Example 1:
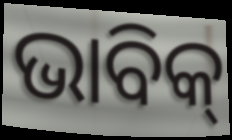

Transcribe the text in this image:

ଭାବିକ୍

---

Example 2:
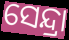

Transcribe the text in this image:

ସେନ୍ଦ୍ରା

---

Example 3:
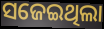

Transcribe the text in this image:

ସଜେଇଥିଲା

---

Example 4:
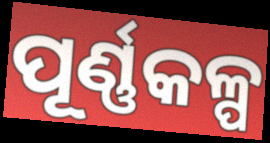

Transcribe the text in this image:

ପୂର୍ଣ୍ଣକଳ୍ପ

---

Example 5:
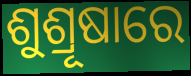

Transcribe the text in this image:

ଶୁଶ୍ରୂଷାରେ